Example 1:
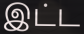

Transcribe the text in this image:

இட்ட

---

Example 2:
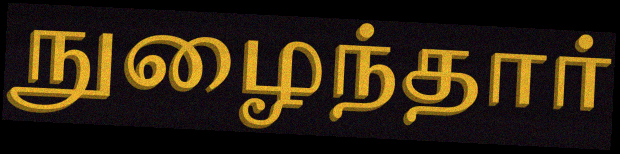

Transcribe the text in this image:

நுழைந்தார்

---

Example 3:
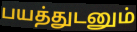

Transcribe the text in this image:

பயத்துடனும்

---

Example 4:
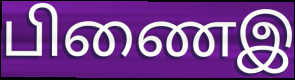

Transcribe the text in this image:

பிணைஇ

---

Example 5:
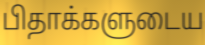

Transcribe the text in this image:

பிதாக்களுடைய